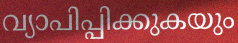
വ്യാപിപ്പിക്കുകയും